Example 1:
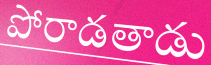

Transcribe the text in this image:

పోరాడతాడు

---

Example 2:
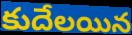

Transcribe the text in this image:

కుదేలయిన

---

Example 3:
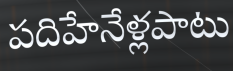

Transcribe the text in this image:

పదిహేనేళ్లపాటు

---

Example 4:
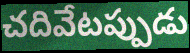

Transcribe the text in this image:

చదివేటప్పుడు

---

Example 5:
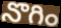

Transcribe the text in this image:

నొగిం